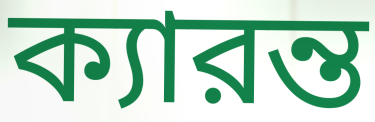
ক্যারন্ত